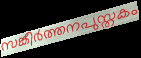
സങ്കീർത്തനപുസ്തകം